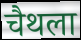
चैथला